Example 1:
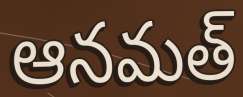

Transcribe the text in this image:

ఆనమత్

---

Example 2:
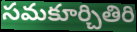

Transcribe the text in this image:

సమకూర్చితిరి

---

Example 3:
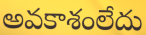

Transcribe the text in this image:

అవకాశంలేదు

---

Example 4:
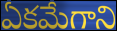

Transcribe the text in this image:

ఏకమేగాని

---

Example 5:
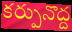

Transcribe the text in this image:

కర్పునొద్ద